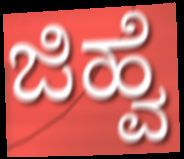
ಜಿಹ್ವೆ